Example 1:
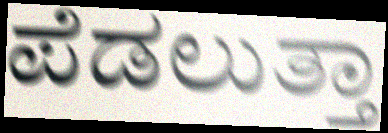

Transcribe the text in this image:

ಪೆಡಲುತ್ತಾ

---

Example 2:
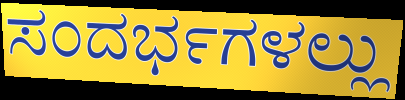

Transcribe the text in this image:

ಸಂದರ್ಭಗಳಲ್ಲು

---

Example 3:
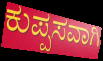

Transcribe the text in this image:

ಕುಪ್ಪಸವಾಗಿ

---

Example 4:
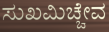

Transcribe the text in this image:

ಸುಖಮಿಚ್ಚೇವ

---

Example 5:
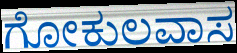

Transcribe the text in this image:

ಗೋಕುಲವಾಸ